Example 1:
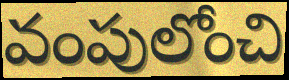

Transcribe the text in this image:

వంపులోంచి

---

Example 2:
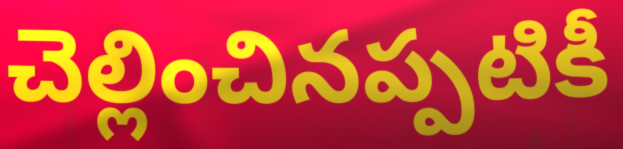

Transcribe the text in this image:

చెల్లించినప్పటికీ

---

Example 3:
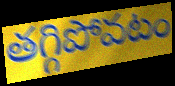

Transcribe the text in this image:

తగ్గిపోవటం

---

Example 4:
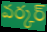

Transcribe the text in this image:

వర్కర్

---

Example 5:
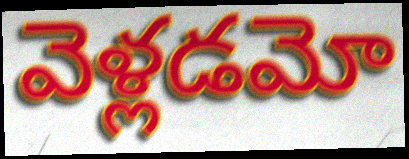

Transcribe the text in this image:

వెళ్లడమో